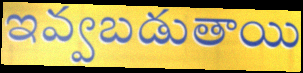
ఇవ్వబడుతాయి